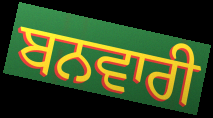
ਬਨਵਾਰੀ